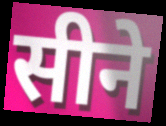
सीने